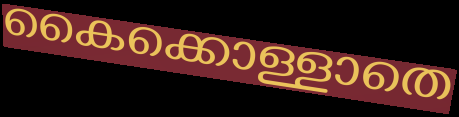
കൈക്കൊള്ളാതെ